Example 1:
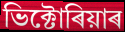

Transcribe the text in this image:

ভিক্টোৰিয়াৰ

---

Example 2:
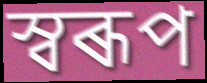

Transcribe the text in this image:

স্বৰূপ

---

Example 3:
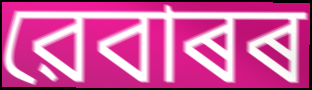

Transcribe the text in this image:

ৱেবাৰৰ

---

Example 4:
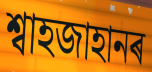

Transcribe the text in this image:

শ্বাহজাহানৰ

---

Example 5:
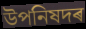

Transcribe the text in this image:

উপনিষদৰ